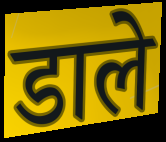
डाले